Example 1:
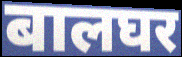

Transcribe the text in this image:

बालघर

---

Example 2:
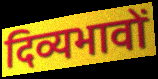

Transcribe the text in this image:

दिव्यभावों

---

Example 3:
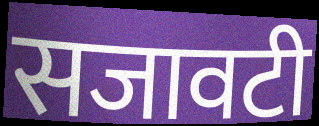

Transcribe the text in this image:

सजावटी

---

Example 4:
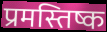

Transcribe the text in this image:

प्रमस्तिष्क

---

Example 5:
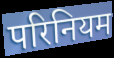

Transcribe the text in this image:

परिनियम